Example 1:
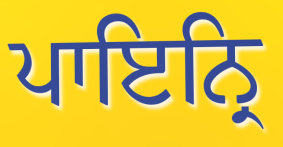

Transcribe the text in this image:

ਪਾਇਨ੍ਰਿ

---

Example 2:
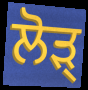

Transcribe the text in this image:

ਲੋੜ੍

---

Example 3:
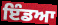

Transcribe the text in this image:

ਇੰਡਆ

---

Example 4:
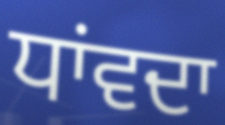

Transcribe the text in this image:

ਧਾਂਵਦਾ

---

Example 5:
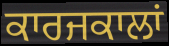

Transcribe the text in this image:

ਕਾਰਜਕਾਲਾਂ